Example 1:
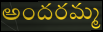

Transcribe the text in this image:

అందరమ్మ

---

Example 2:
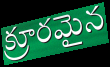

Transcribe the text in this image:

క్రూరమైన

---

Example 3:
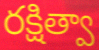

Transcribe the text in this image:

రక్షిత్వా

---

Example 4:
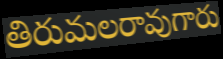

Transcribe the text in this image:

తిరుమలరావుగారు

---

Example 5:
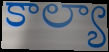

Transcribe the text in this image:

కాల్యా